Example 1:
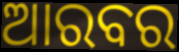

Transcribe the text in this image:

ଆରବର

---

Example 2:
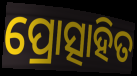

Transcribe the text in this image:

ପ୍ରୋତ୍ସାହିତ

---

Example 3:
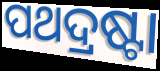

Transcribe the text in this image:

ପଥଦ୍ରଷ୍ଟା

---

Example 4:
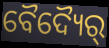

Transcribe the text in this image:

ବୈଦ୍ୟୈର୍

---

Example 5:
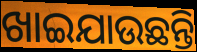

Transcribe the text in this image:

ଖାଇଯାଉଛନ୍ତି